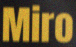
Miro